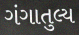
ગંગાતુલ્ય